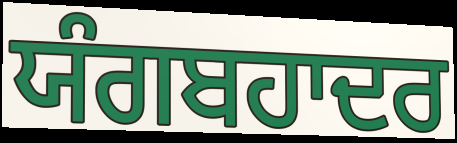
ਯੰਗਬਹਾਦਰ